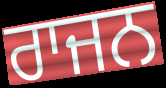
ਰਾਜਨ